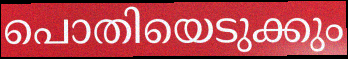
പൊതിയെടുക്കും